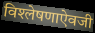
विश्लेषणाऐवजी